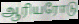
ஆரியரோடு